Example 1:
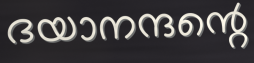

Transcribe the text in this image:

ദയാനന്ദന്റെ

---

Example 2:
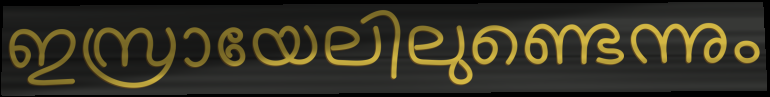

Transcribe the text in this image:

ഇസ്രായേലിലുണ്ടെന്നും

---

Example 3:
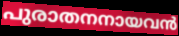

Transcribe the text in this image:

പുരാതനനായവൻ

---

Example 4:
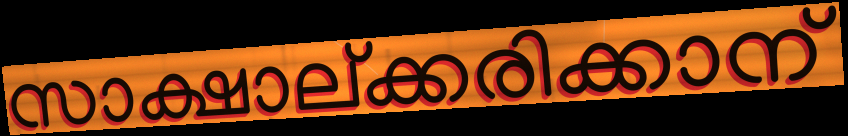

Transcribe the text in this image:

സാക്ഷാല്ക്കരിക്കാന്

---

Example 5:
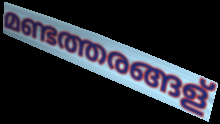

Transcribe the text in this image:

മണ്ടത്തരങ്ങള്